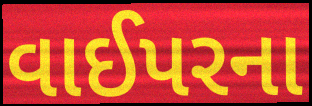
વાઈપરના